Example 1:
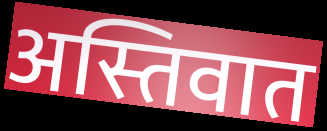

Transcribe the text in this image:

अस्तिवात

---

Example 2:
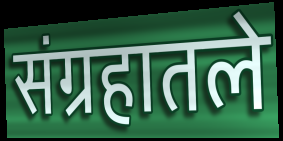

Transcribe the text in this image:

संग्रहातले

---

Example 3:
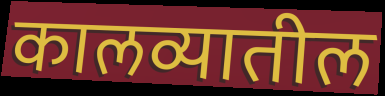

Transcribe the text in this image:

कालव्यातील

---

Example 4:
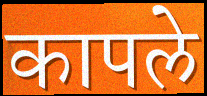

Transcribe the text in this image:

कापले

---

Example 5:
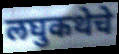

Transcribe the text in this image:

लघुकथेचे